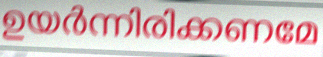
ഉയർന്നിരിക്കണമേ